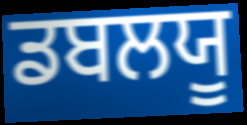
ਡਬਲਯੂ